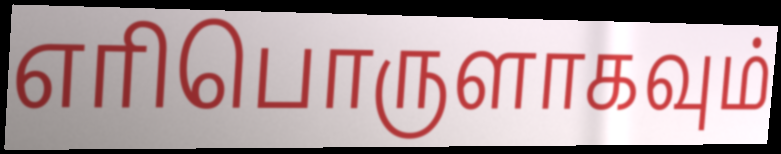
எரிபொருளாகவும்